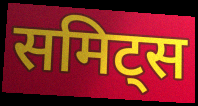
समिट्स